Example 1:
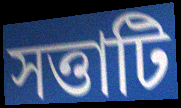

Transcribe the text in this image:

সত্তাটি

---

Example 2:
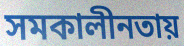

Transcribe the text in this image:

সমকালীনতায়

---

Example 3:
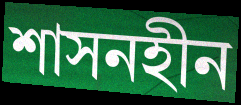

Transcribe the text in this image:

শাসনহীন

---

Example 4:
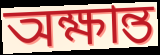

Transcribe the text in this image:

অক্ষান্ত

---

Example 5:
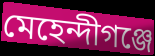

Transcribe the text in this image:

মেহেন্দীগঞ্জে